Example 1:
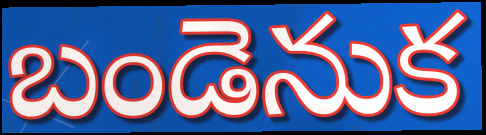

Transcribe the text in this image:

బండెనుక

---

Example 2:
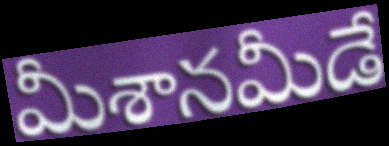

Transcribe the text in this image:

మీశానమీడే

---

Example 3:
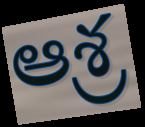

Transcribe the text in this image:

ఆశ్ర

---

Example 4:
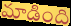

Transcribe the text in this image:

మాడింది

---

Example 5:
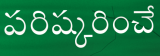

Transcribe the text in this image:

పరిష్కరించే